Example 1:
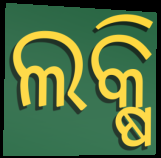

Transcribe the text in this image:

ଲକ୍ଷି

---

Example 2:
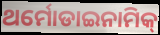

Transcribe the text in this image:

ଥର୍ମୋଡାଇନାମିକ୍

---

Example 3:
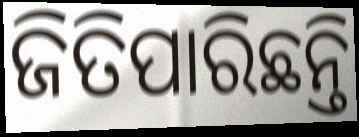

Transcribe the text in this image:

ଜିତିପାରିଛନ୍ତି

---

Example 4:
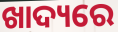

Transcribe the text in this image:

ଖାଦ୍ୟରେ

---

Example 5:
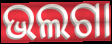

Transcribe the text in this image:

ଭଲଗା